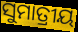
ସୁମାତ୍ରୀୟ